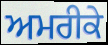
ਅਮਰੀਕੇ